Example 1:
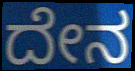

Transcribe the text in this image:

ದೇನ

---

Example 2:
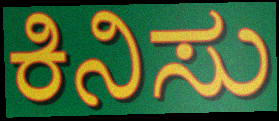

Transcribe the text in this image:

ಕಿನಿಸು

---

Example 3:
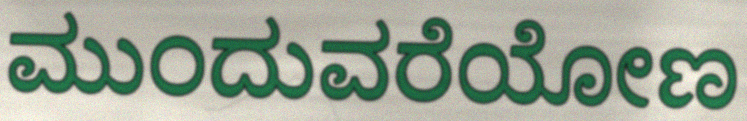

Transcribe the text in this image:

ಮುಂದುವರೆಯೋಣ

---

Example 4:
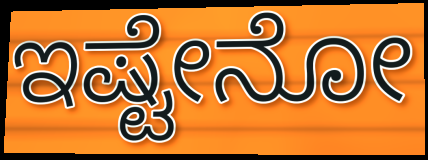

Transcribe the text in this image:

ಇಷ್ಟೇನೋ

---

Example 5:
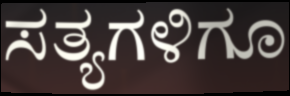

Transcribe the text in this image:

ಸತ್ಯಗಳಿಗೂ